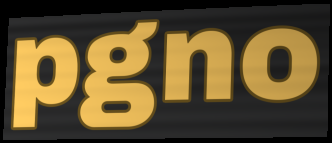
pgno